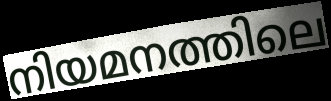
നിയമനത്തിലെ